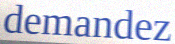
demandez